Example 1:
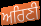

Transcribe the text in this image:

ਅਰਿਣੀ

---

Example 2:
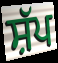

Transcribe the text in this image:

ਸ਼ੱਪ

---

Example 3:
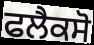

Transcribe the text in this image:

ਫਲੈਕਸੋ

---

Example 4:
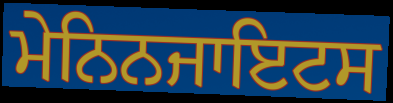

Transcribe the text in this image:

ਮੇਨਿਨਜਾਇਟਸ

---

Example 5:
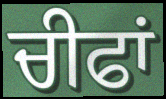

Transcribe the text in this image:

ਚੀਫਾਂ